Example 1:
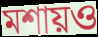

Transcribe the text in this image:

মশায়ও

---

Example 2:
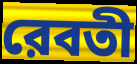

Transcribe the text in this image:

রেবতী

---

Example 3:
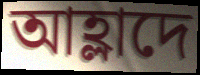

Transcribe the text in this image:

আহ্লাদে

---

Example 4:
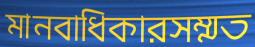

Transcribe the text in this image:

মানবাধিকারসম্মত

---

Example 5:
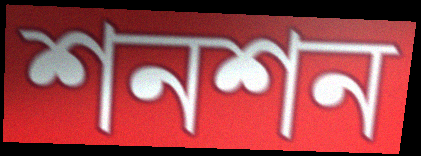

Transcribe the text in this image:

শনশন